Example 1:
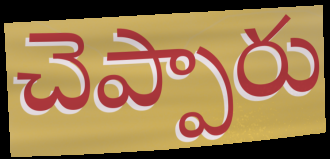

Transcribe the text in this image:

చెప్పారు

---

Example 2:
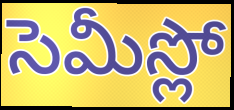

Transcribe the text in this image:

సెమీస్లో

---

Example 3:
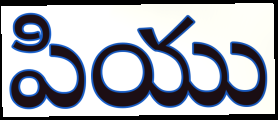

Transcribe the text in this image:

పియు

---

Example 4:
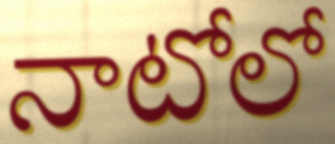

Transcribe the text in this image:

నాటోలో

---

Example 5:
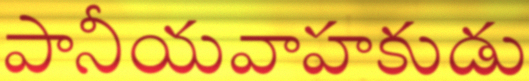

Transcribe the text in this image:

పానీయవాహకుడు